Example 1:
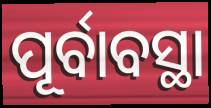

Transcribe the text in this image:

ପୂର୍ବାବସ୍ଥା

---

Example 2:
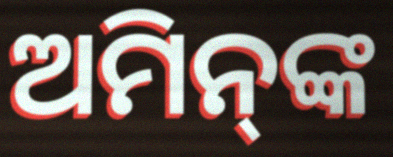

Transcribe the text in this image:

ଅମିନ୍‌ଙ୍କ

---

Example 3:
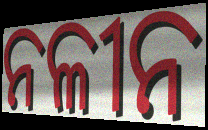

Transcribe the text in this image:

ନଳୀନ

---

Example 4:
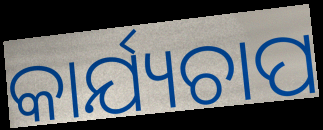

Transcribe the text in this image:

କାର୍ଯ୍ୟଚାପ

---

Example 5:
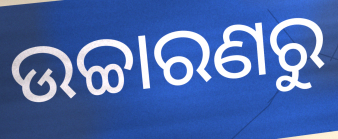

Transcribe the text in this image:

ଉଚ୍ଚାରଣରୁ